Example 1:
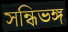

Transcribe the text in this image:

সন্ধিভঙ্গ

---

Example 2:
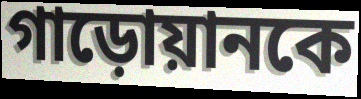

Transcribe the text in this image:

গাড়োয়ানকে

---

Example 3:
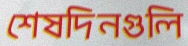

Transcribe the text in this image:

শেষদিনগুলি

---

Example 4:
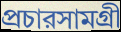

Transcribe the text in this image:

প্রচারসামগ্রী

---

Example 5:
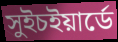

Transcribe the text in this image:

সুইচইয়ার্ডে